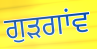
ਗੁਡ਼ਗਾਂਵ